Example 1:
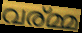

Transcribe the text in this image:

വര്മ്മ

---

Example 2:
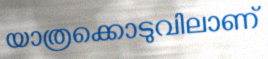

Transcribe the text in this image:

യാത്രക്കൊടുവിലാണ്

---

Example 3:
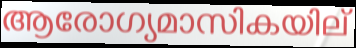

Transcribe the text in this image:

ആരോഗ്യമാസികയില്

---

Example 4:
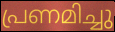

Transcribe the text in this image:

പ്രണമിച്ചു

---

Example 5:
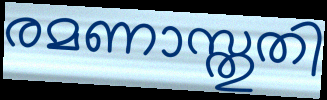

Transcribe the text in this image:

രമണാസ്തുതി